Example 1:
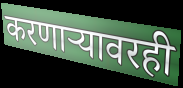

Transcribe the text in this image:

करणाऱ्यावरही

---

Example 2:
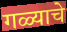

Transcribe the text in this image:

गळ्याचे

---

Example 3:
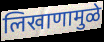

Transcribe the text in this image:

लिखाणामुळे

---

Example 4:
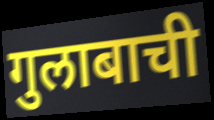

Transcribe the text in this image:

गुलाबाची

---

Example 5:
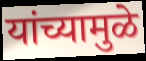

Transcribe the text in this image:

यांच्यामुळे